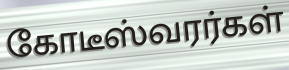
கோடீஸ்வரர்கள்